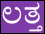
ಲತ್ತ